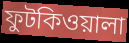
ফুটকিওয়ালা